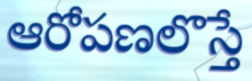
ఆరోపణలొస్తే